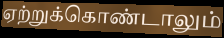
ஏற்றுக்கொண்டாலும்